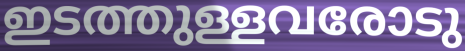
ഇടത്തുള്ളവരോടു